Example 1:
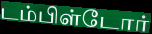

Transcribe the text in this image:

டம்பிள்டோர்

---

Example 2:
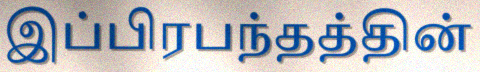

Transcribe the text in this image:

இப்பிரபந்தத்தின்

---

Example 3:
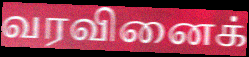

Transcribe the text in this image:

வரவினைக்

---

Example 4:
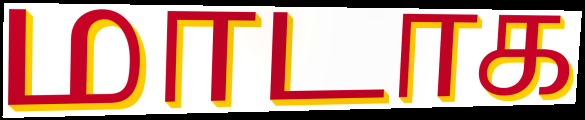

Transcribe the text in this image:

மாடாக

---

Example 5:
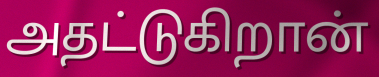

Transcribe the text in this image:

அதட்டுகிறான்